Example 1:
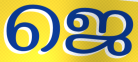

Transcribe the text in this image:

ജെ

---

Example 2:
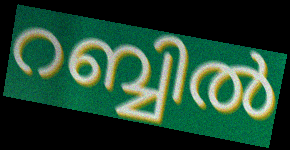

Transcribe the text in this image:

റബ്ബിൽ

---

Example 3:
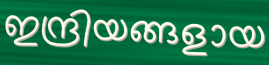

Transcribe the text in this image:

ഇന്ദ്രിയങ്ങളായ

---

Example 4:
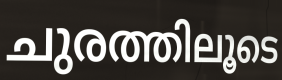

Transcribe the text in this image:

ചുരത്തിലൂടെ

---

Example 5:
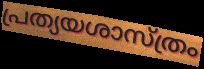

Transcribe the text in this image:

പ്രത്യയശാസ്ത്രം